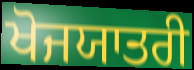
ਖੋਜਯਾਤਰੀ